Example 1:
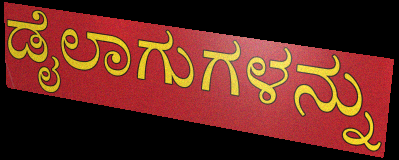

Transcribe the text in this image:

ಡೈಲಾಗುಗಳನ್ನು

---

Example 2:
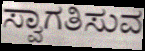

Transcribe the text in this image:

ಸ್ವಾಗತಿಸುವ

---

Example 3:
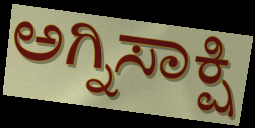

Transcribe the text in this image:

ಅಗ್ನಿಸಾಕ್ಷಿ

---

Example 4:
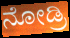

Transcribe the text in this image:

ನೋಡ್ರಿ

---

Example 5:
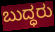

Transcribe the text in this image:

ಬುದ್ಧರು